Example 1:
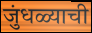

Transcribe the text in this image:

जुंधळ्याची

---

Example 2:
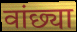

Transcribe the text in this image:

वांछ्या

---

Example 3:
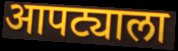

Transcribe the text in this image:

आपट्याला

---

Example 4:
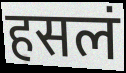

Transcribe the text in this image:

हसलं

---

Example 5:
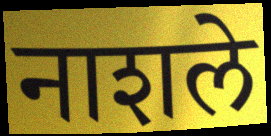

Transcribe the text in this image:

नाशले